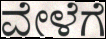
ವೇಳೆಗೆ